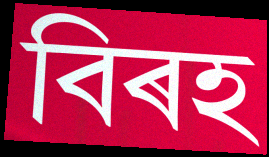
বিৰহ